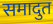
समादुत